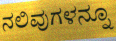
ನಲಿವುಗಳನ್ನೂ